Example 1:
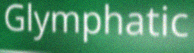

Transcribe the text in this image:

Glymphatic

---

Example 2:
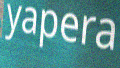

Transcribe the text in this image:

yapera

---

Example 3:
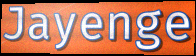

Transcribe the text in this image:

Jayenge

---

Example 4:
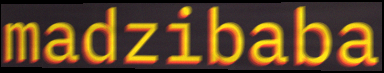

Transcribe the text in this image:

madzibaba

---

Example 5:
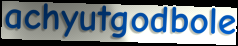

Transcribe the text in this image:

achyutgodbole